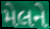
મેલને